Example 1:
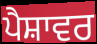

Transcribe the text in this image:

ਪੈਸ਼ਾਵਰ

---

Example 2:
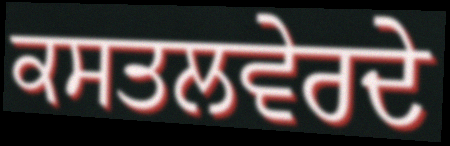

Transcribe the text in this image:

ਕਸਤਲਵੇਰਦੇ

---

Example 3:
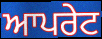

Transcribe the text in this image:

ਆਪਰੇਟ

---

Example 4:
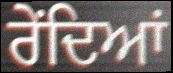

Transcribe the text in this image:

ਰੇਂਦਿਆਂ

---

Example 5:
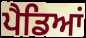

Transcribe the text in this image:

ਪੈਡਿਆਂ